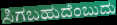
ಸಿಗಬಹುದೆಂಬುದು